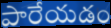
పారేయడం